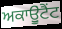
ਅਕਾਉੂਂਟੈਂਟ